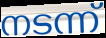
നടന്ന്